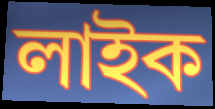
লাইক